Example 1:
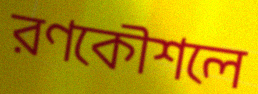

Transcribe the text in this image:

রণকৌশলে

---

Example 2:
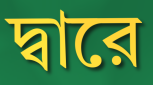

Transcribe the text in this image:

দ্বারে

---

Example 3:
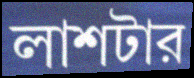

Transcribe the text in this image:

লাশটার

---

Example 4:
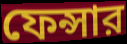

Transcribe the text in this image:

ফেন্সার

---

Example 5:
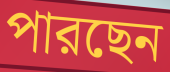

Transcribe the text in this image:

পারছেন